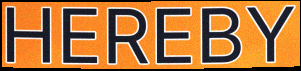
HEREBY